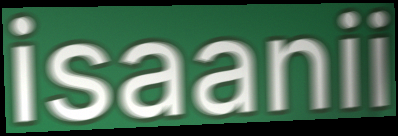
isaanii